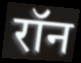
रॉन